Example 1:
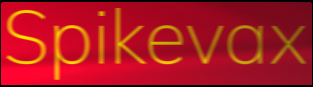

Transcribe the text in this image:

Spikevax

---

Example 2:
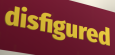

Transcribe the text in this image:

disfigured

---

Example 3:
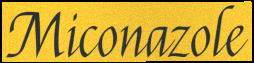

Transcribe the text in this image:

Miconazole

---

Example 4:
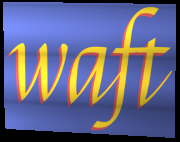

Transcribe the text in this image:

waft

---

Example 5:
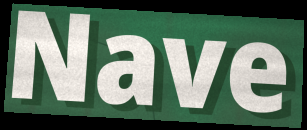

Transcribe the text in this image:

Nave